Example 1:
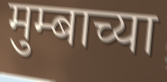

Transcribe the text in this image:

मुम्बाच्या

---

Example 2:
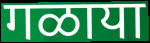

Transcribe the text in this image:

गळाया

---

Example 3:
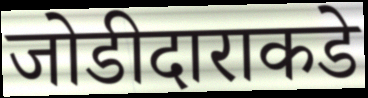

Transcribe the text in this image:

जोडीदाराकडे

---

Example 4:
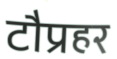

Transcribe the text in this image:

टौप्रहर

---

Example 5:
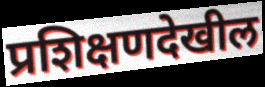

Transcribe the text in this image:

प्रशिक्षणदेखील